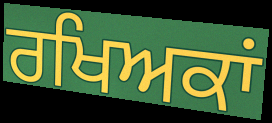
ਰਖਿਅਕਾਂ